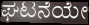
ಘಟನೆಯೇ